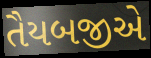
તૈયબજીએ